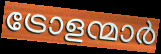
ട്രോളന്മാർ